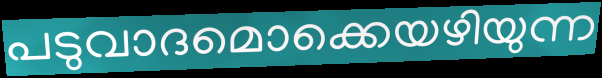
പടുവാദമൊക്കെയഴിയുന്ന